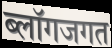
ब्लॉगजगत